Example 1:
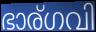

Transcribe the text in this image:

ഭാര്ഗവി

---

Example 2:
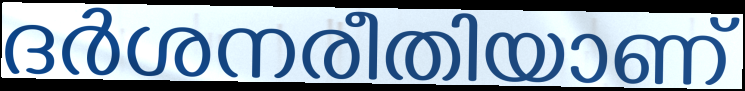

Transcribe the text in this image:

ദർശനരീതിയാണ്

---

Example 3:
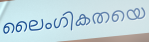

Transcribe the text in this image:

ലൈംഗികതയെ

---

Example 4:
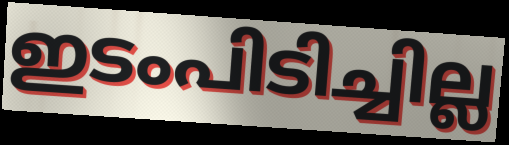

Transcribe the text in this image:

ഇടംപിടിച്ചില്ല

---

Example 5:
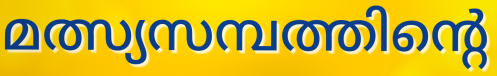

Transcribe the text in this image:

മത്സ്യസമ്പത്തിന്റെ